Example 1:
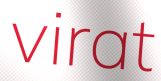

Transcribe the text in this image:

virat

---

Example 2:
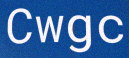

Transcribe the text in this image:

Cwgc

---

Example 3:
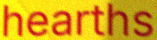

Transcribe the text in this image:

hearths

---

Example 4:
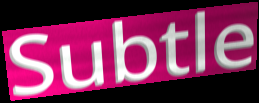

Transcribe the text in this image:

Subtle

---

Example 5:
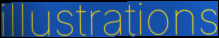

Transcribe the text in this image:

illustrations